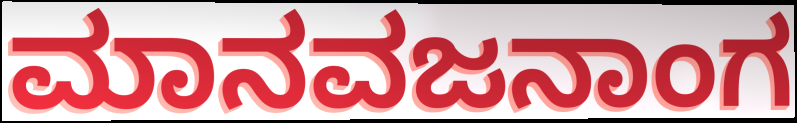
ಮಾನವಜನಾಂಗ